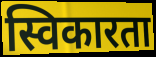
स्विकारता